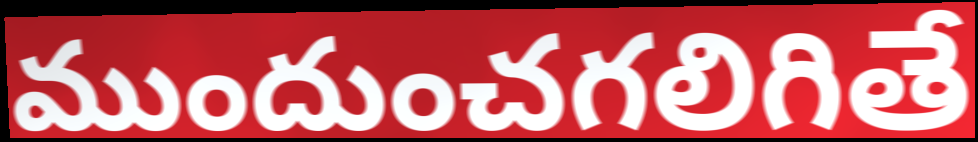
ముందుంచగలిగితే